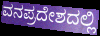
ವನಪ್ರದೇಶದಲ್ಲಿ